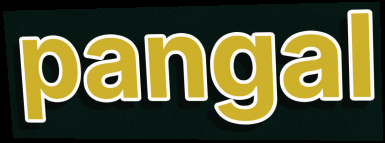
pangal